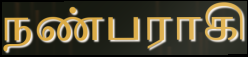
நண்பராகி